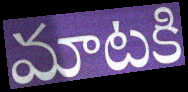
మాటకి